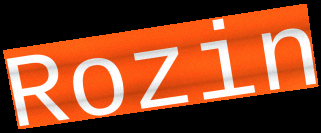
Rozin